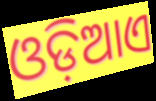
ଓଡ଼ିଆଏ